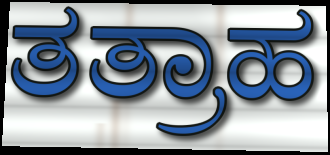
ತತ್ರಾಹ